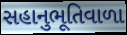
સહાનુભૂતિવાળા